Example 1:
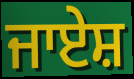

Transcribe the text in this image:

ਜਾਏਸ਼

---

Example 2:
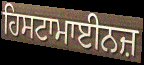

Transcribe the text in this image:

ਹਿਸਟਾਮਾਈਨਜ਼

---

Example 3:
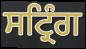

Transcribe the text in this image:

ਸਟ੍ਰਿੰਗ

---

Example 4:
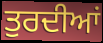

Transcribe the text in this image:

ਤੁਰਦੀਆਂ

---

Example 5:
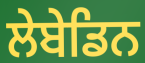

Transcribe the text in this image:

ਲੇਬੇਡਿਨ